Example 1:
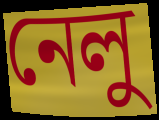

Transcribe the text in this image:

নেলু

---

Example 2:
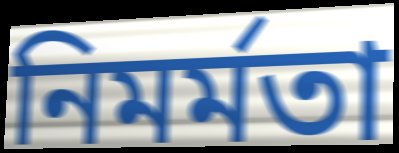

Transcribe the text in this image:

নিমর্মতা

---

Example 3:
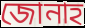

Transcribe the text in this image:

জোনাহ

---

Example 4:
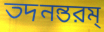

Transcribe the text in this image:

তদনন্তরম্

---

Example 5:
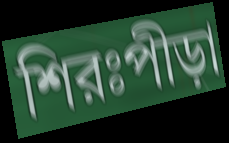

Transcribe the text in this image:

শিরঃপীড়া